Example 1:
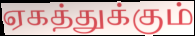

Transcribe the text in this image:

ஏகத்துக்கும்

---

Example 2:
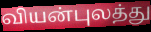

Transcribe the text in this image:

வியன்புலத்து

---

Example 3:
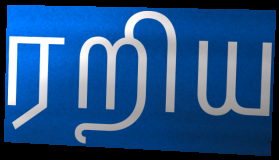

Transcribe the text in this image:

ரறிய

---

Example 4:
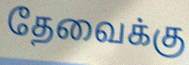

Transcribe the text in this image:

தேவைக்கு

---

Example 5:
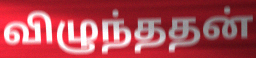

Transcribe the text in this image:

விழுந்ததன்